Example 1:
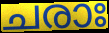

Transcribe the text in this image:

ചരാഃ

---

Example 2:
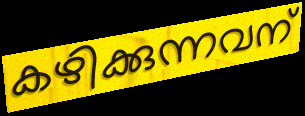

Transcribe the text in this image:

കഴിക്കുന്നവന്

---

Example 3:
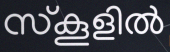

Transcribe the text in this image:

സ്കൂളിൽ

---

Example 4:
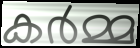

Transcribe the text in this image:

കർമ്മ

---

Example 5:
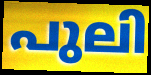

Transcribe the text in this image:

പുലി